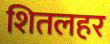
शितलहर